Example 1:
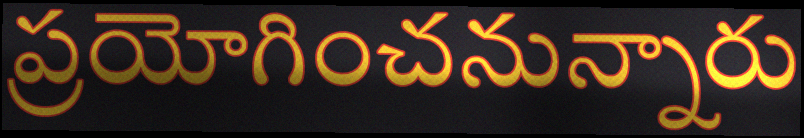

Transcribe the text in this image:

ప్రయోగించనున్నారు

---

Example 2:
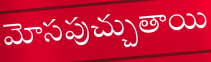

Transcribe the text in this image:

మోసపుచ్చుతాయి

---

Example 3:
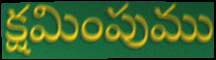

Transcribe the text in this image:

క్షమింపుము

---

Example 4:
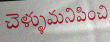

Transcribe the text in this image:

చెళ్ళుమనిపించి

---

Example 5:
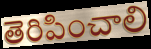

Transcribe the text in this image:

తెరిపించాలి